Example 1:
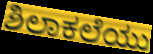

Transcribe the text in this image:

ಶಿಲಾಕಲೆಯು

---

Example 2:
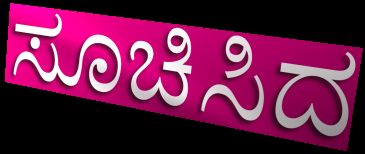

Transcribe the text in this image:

ಸೂಚಿಸಿದ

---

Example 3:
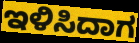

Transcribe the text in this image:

ಇಳಿಸಿದಾಗ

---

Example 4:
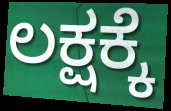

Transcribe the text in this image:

ಲಕ್ಷಕ್ಕೆ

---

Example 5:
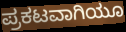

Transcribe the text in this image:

ಪ್ರಕಟವಾಗಿಯೂ